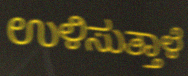
ಉಳಿಸುತ್ತಾಳೆ